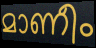
മാണീം